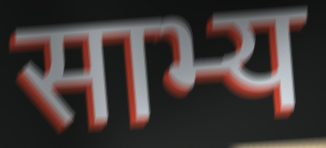
साभ्य